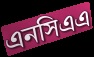
এনসিএএ